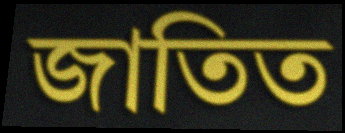
জাতিত